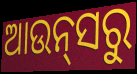
ଆଉନ୍‍ସରୁ